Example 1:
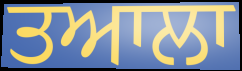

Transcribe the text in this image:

ਤਆਲਾ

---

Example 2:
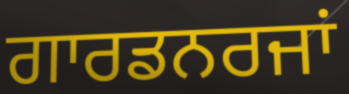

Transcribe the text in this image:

ਗਾਰਡਨਰਜਾਂ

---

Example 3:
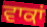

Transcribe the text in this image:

ਵਾਕਾਂ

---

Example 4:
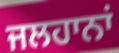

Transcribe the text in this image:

ਜਲਹਾਨਾਂ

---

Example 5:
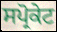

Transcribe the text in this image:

ਸਪ੍ਰੋਕੇਟ